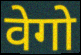
वेगो